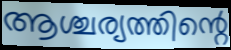
ആശ്ചര്യത്തിന്റെ